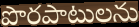
పొరపాటులను